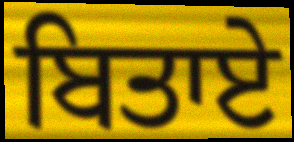
ਬਿਤਾਏ